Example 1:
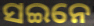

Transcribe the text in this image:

ସଇନେ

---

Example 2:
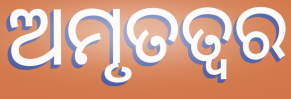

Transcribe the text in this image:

ଅମୃତତ୍ଵର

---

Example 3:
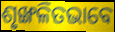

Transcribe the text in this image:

ଶୃଙ୍ଖଳିତଭାବେ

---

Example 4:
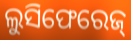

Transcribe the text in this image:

ଲୁସିଫେରେଜ୍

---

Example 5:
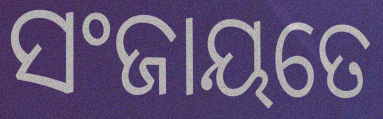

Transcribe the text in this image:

ସଂଜାୟତେ